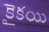
కైకయి